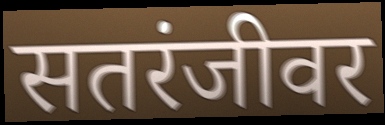
सतरंजीवर